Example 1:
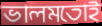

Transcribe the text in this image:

ভালমতোই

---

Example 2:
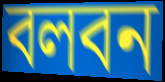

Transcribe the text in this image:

বলবন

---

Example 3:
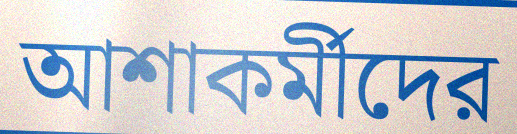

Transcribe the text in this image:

আশাকর্মীদের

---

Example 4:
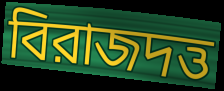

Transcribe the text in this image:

বিরাজদত্ত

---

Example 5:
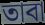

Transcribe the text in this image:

তাবা